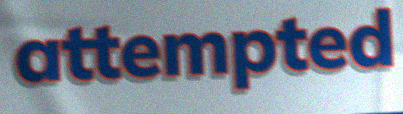
attempted